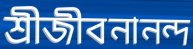
শ্রীজীবনানন্দ